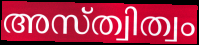
അസ്ത്വിത്വം